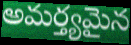
అమర్త్యమైన